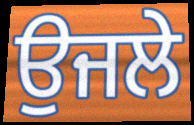
ਉਜਲੇ